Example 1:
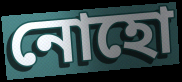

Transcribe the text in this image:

নোহো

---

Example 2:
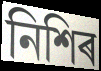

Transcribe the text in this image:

নিশিৰ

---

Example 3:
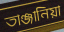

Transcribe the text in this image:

তাঞ্জানিয়া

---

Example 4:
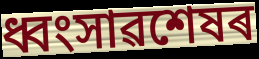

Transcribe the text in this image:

ধ্বংসাৱশেষৰ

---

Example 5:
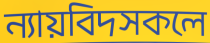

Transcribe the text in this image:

ন্যায়বিদসকলে